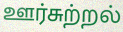
ஊர்சுற்றல்